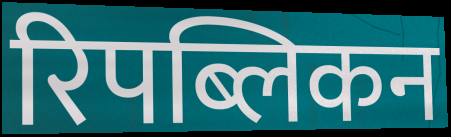
रिपब्लिकन